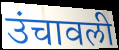
उंचावली